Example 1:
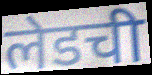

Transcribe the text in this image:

लेडची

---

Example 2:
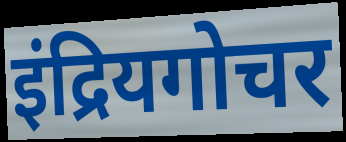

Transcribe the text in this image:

इंद्रियगोचर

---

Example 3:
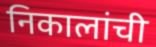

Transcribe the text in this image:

निकालांची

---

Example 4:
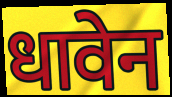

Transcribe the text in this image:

धावेन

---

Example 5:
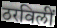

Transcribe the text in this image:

ठरविलीं